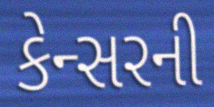
કેન્સરની